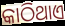
କାଠିଥାଏ